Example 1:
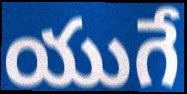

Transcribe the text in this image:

యుగే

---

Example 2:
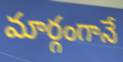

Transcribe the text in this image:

మార్గంగానే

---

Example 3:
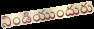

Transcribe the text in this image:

నిండియుందురు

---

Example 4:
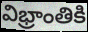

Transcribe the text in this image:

విభ్రాంతికి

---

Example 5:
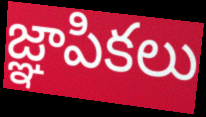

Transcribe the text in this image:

జ్ఞాపికలు